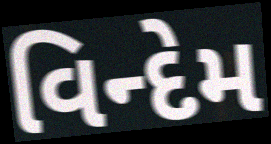
વિન્દેમ